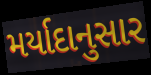
મર્યાદાનુસાર